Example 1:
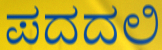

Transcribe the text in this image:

ಪದದಲಿ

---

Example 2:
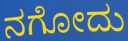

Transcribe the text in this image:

ನಗೋದು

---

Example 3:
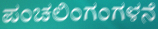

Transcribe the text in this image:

ಪಂಚಲಿಂಗಂಗಳನೆ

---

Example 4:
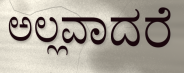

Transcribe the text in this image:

ಅಲ್ಲವಾದರೆ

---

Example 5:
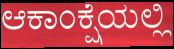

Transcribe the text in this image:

ಆಕಾಂಕ್ಷೆಯಲ್ಲಿ